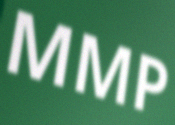
MMP